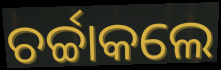
ଚର୍ଚ୍ଚାକଲେ